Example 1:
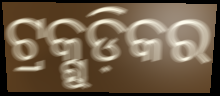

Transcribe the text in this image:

ଟ୍ରକ୍ଗୁଡ଼ିକର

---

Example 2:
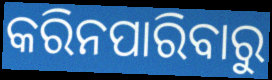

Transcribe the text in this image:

କରିନପାରିବାରୁ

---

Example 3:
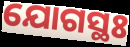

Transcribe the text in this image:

ଯୋଗସ୍ଥଃ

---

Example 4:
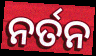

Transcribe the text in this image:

ନର୍ତନ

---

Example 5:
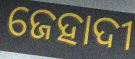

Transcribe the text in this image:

ଜେହାଦୀ